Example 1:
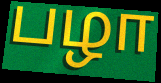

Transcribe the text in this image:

பழா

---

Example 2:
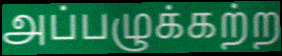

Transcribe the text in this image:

அப்பழுக்கற்ற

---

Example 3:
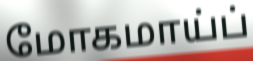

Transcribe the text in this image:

மோகமாய்ப்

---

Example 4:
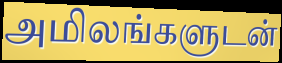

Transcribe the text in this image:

அமிலங்களுடன்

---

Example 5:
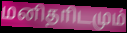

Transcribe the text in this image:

மனிதரிடமும்